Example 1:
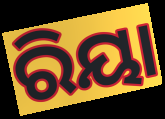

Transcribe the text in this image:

ରିୟା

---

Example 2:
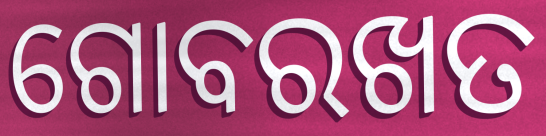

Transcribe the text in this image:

ଗୋବରଖତ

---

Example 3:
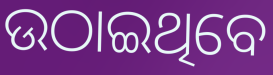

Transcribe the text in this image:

ଉଠାଇଥିବେ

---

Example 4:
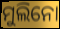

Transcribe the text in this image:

ମୁଲିନୋ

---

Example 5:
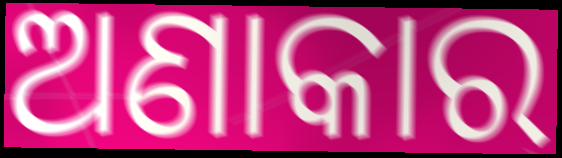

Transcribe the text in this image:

ଅଣାକାର